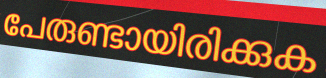
പേരുണ്ടായിരിക്കുക